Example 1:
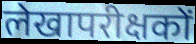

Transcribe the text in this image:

लेखापरीक्षकों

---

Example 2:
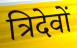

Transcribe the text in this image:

त्रिदेवों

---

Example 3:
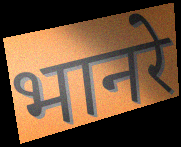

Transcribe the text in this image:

भानरे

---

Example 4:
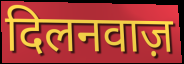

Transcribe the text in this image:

दिलनवाज़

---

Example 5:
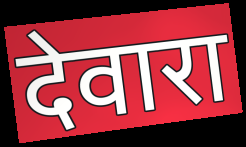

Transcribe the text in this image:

देवारा